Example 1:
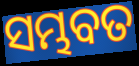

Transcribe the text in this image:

ସମ୍ଭବତ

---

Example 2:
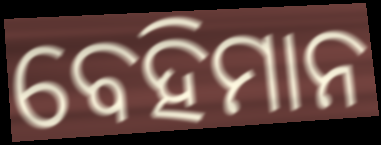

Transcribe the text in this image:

ବେହିମାନ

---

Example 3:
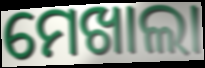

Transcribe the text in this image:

ମେଖାଲା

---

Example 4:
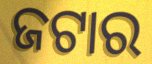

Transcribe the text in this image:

ଜଟାର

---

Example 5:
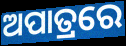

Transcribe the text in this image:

ଅପାତ୍ରରେ